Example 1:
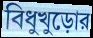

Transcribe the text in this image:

বিধুখুড়োর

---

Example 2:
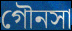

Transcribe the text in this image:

গৌনসা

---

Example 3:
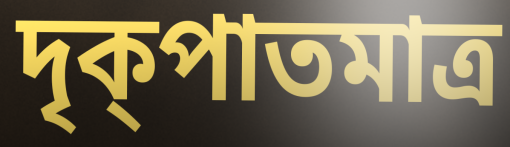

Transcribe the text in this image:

দৃক্পাতমাত্র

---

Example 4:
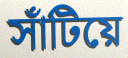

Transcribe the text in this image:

সাঁটিয়ে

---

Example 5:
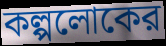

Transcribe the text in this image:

কল্পলোকের